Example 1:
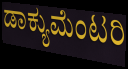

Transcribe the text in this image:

ಡಾಕ್ಯುಮೆಂಟರಿ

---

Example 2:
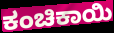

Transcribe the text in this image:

ಕಂಚಿಕಾಯಿ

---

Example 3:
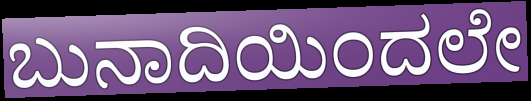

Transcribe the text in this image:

ಬುನಾದಿಯಿಂದಲೇ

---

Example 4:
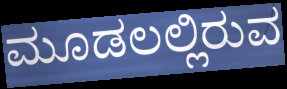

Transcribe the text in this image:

ಮೂಡಲಲ್ಲಿರುವ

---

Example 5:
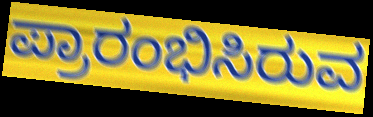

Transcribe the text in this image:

ಪ್ರಾರಂಭಿಸಿರುವ